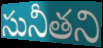
సునీతని